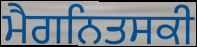
ਮੈਗਨਿਤਸਕੀ